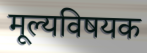
मूल्यविषयक